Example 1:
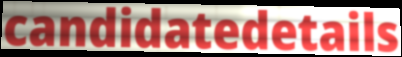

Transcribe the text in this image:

candidatedetails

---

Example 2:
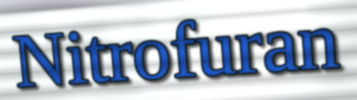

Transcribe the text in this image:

Nitrofuran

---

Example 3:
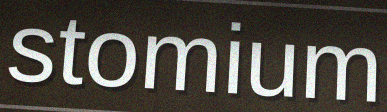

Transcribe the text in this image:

stomium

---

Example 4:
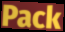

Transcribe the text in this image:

Pack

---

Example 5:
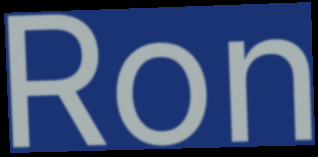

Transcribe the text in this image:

Ron